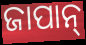
ଜାପାନ୍